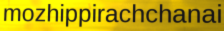
mozhippirachchanai